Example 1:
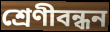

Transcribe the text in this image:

শ্রেণীবন্ধন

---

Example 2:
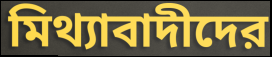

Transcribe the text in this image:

মিথ্যাবাদীদের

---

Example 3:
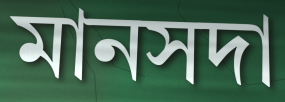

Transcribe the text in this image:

মানসদা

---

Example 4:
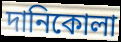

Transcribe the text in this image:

দানিকোলা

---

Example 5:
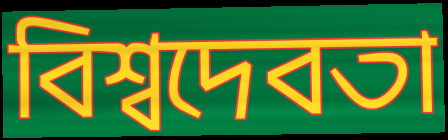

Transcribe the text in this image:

বিশ্বদেবতা